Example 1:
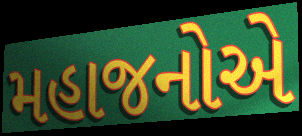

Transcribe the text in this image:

મહાજનોએ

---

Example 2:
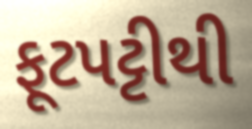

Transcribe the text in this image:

ફૂટપટ્ટીથી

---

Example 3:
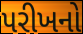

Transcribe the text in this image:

પરીખનો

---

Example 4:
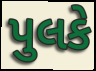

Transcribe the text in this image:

પુલકે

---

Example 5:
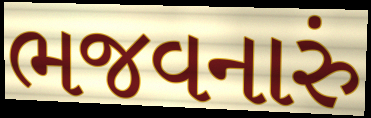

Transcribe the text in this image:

ભજવનારું